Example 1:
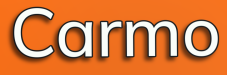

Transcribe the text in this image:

Carmo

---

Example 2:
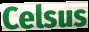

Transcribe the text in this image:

Celsus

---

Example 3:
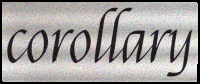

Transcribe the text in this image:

corollary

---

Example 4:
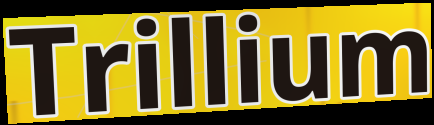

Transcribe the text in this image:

Trillium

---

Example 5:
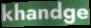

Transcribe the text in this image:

khandge